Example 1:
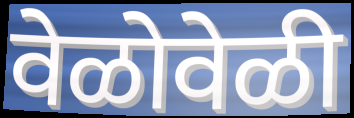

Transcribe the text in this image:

वेळोवेळी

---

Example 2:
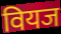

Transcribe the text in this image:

वियज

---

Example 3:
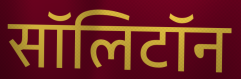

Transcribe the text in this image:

सॉलिटॉन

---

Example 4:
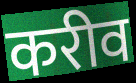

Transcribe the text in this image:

करीव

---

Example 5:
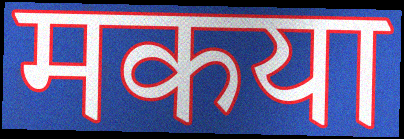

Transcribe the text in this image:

मकया